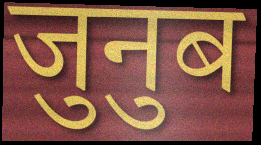
जुनुब